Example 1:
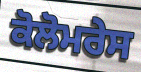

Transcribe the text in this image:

ਕੋਲੋਮਰੇਸ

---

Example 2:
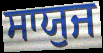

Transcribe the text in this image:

ਸਾਯੁਜ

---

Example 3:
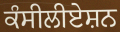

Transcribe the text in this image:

ਕੰਸੀਲੀਏਸ਼ਨ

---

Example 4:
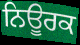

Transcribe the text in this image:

ਨਿਊਰਕ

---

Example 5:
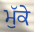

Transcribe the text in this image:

ਮੁੱਕੇ